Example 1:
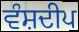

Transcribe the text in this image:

ਵੰਸ਼ਦੀਪ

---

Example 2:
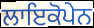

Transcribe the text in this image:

ਲਾਇਕੋਪੇਨ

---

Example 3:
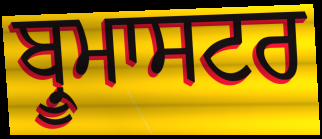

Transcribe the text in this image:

ਬ੍ਰੂਮਾਸਟਰ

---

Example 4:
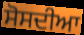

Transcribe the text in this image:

ਸੋਸਦੀਆ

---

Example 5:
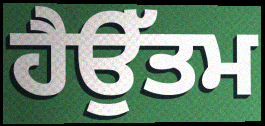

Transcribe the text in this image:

ਹੈਉੱਤਮ